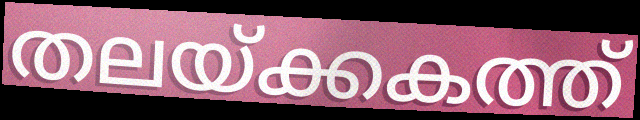
തലയ്ക്കകത്ത്